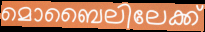
മൊബൈലിലേക്ക്